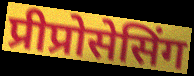
प्रीप्रोसेसिंग